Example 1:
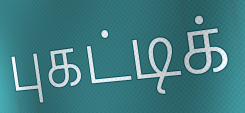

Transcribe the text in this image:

புகட்டிக்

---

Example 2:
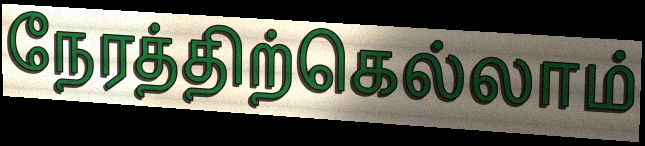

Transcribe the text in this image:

நேரத்திற்கெல்லாம்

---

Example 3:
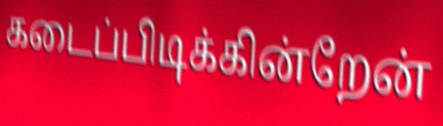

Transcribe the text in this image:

கடைப்பிடிக்கின்றேன்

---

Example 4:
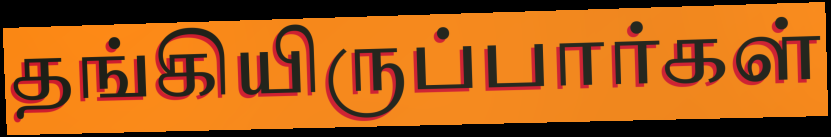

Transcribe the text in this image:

தங்கியிருப்பார்கள்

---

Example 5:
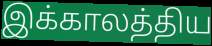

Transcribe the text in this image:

இக்காலத்திய